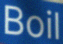
Boil